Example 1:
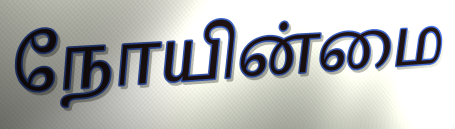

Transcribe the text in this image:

நோயின்மை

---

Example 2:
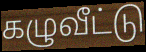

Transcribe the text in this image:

கழுவீட்டு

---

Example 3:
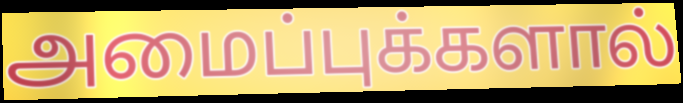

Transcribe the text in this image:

அமைப்புக்களால்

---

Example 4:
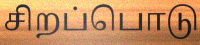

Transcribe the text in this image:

சிறப்பொடு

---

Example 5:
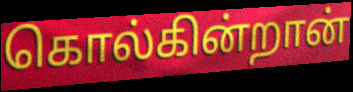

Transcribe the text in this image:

கொல்கின்றான்